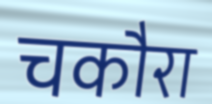
चकौरा